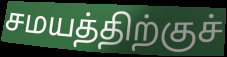
சமயத்திற்குச்